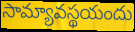
సామ్యావస్థయందు